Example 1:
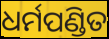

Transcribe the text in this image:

ଧର୍ମପଣ୍ଡିତ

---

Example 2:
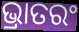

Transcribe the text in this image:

ଭ୍ରାତରଂ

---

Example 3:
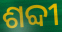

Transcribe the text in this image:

ଶବ୍ଦୀ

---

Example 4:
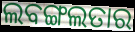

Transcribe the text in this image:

ଲବଙ୍ଗଲତାର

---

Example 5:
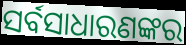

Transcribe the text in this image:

ସର୍ବସାଧାରଣଙ୍କର